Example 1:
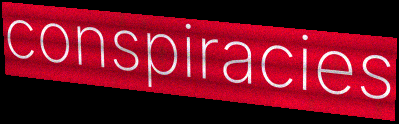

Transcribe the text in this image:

conspiracies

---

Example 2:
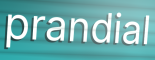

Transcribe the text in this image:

prandial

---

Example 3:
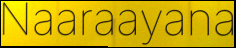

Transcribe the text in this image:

Naaraayana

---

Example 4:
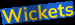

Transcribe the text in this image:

Wickets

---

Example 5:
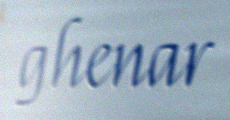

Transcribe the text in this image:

ghenar